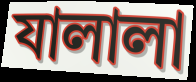
যালালা